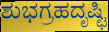
ಶುಭಗ್ರಹದೃಷ್ಟಿ